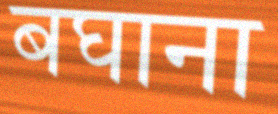
बघाना